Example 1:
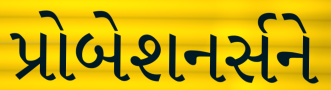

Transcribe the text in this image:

પ્રોબેશનર્સને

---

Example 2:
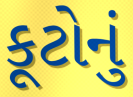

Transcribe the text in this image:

કૂટોનું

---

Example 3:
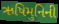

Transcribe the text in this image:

ઋષિમુનિની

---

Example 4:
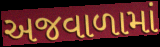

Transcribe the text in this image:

અજવાળામાં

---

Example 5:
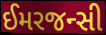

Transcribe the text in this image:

ઈમરજન્સી